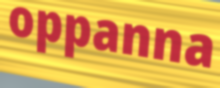
oppanna